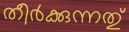
തീർക്കുന്നതു്